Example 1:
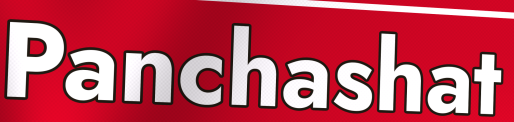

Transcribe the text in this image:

Panchashat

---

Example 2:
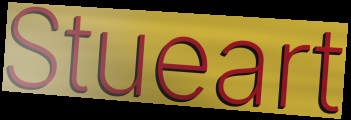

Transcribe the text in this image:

Stueart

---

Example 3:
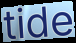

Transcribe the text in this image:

tide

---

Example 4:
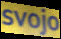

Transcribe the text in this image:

svojo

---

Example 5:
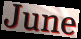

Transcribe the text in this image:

June